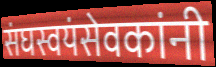
संघस्वयंसेवकांनी